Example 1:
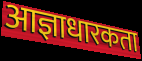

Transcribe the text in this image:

आज्ञाधारकता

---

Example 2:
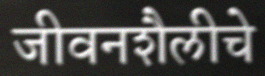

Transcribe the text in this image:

जीवनशैलीचे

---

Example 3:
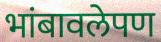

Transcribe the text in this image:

भांबावलेपण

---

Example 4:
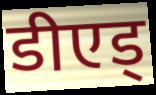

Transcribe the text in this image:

डीएड्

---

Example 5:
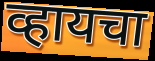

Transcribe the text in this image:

व्हायचा